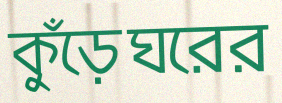
কুঁড়েঘরের